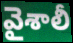
వైశాలీ